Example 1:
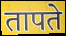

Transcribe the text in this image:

तापते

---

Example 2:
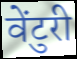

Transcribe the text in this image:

वेंटुरी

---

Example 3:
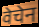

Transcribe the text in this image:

वेचेन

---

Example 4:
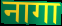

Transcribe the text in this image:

नागा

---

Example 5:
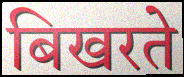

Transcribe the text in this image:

बिखरते